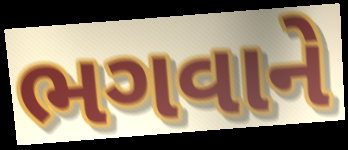
ભગવાને